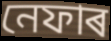
নেফাৰ